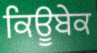
ਕਿਊਬੇਕ